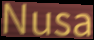
Nusa